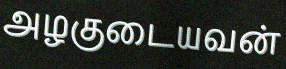
அழகுடையவன்